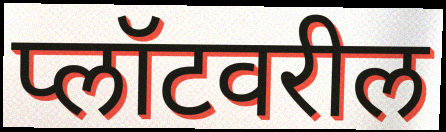
प्लॉटवरील